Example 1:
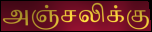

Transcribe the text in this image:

அஞ்சலிக்கு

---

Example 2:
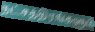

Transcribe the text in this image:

நட்சத்திரங்களும்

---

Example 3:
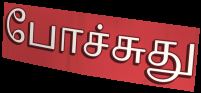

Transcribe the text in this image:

போச்சுது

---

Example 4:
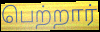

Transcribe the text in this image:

பெற்றார்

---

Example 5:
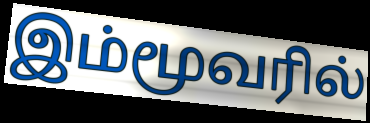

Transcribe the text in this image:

இம்மூவரில்